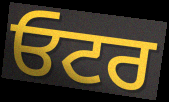
ਓਟਰ